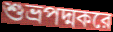
শুভ্রপদ্মকরে